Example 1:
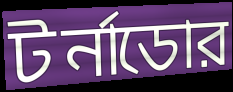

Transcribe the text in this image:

টর্নাডোর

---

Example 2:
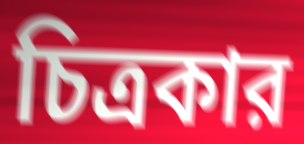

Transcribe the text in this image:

চিত্রকার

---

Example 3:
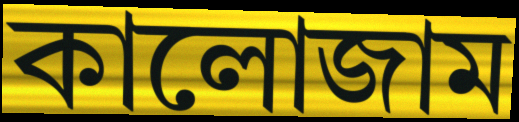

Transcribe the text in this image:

কালোজাম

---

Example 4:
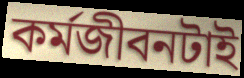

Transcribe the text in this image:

কর্মজীবনটাই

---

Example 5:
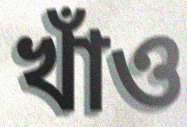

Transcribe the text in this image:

খাঁও